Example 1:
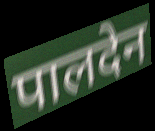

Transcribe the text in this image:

पालदेन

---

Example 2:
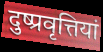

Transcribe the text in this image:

दुष्प्रवृत्तियां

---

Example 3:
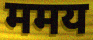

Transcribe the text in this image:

ममय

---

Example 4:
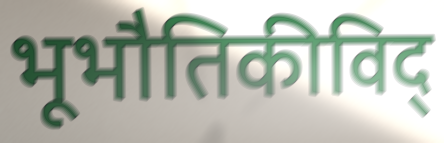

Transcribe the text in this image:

भूभौतिकीविद्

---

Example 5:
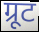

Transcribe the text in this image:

ग्रूट